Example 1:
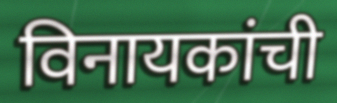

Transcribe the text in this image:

विनायकांची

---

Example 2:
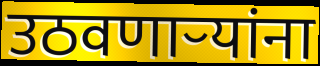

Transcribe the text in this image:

उठवणाऱ्यांना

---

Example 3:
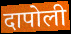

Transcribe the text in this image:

दापोली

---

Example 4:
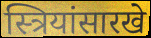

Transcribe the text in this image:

स्त्रियांसारखे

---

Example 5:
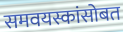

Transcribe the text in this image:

समवयस्कांसोबत